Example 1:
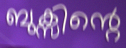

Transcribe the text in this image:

ബുക്സിന്റെ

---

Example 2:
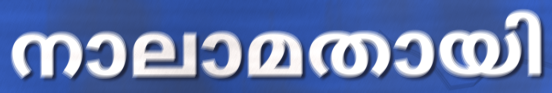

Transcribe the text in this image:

നാലാമതായി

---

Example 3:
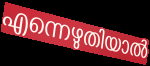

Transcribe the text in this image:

എന്നെഴുതിയാൽ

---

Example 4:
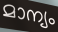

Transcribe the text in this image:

മാന്യം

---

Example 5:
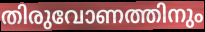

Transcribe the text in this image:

തിരുവോണത്തിനും